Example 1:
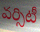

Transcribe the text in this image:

వర్సిటీ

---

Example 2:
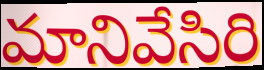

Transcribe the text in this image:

మానివేసిరి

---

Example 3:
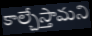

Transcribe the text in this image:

కాల్చేస్తామని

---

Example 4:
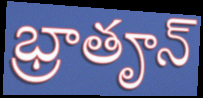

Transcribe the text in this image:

భ్రాతౄన్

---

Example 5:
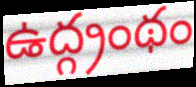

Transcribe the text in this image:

ఉద్గ్రంథం